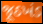
જૂઠખંડ